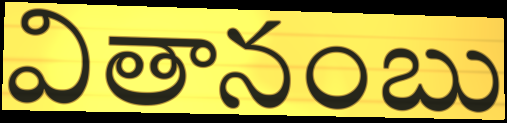
వితానంబు